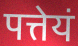
पत्तेयं